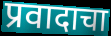
प्रवादाचा